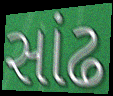
સાંઢ